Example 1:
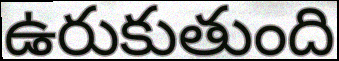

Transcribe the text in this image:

ఉరుకుతుంది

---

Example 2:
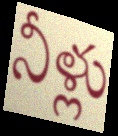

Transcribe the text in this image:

నీళ్లు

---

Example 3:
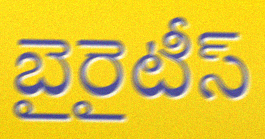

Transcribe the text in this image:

బైరైటీస్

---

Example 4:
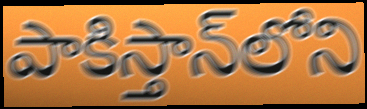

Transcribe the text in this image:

పాకిస్తాన్‌లోని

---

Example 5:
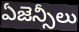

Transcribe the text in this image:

ఏజెన్సీలు